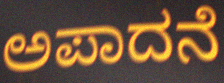
ಅಪಾದನೆ